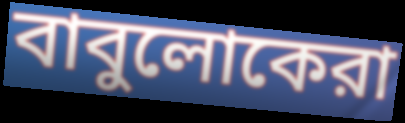
বাবুলোকেরা